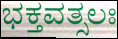
ಭಕ್ತವತ್ಸಲಃ